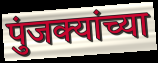
पुंजक्यांच्या